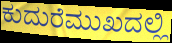
ಕುದುರೆಮುಖದಲ್ಲಿ